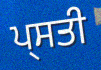
ਪ੍ਸਤੀ